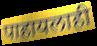
पाहायलाही